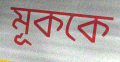
মূককে